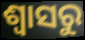
ଶ୍ୱାସରୁ